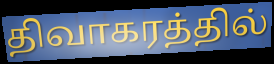
திவாகரத்தில்